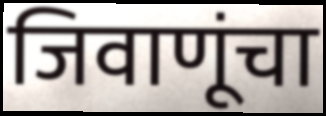
जिवाणूंचा